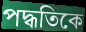
পদ্ধতিকে